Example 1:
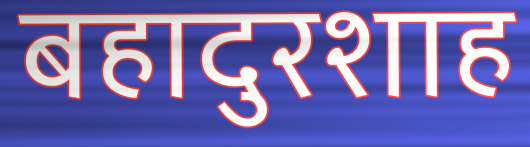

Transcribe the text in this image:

बहादुरशाह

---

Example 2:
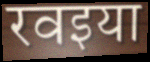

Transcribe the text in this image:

रवइया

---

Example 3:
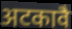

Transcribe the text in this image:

अटकावै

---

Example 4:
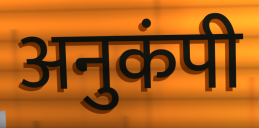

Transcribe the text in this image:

अनुकंपी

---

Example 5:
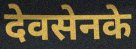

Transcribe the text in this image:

देवसेनके